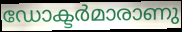
ഡോക്ടർമാരാണു